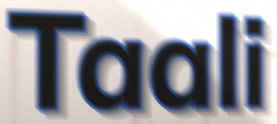
Taali